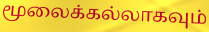
மூலைக்கல்லாகவும்